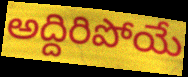
అద్దిరిపోయే